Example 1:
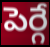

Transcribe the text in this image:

పెర్గే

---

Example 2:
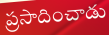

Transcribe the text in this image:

ప్రసాదించాడు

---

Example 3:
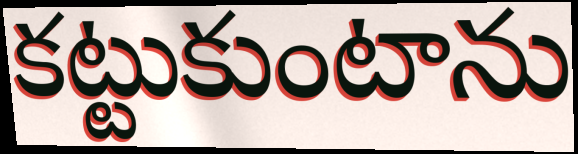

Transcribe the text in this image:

కట్టుకుంటాను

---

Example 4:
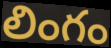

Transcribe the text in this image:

లింగం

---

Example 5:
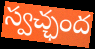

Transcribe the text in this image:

స్వచ్ఛంద